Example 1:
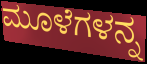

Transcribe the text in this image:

ಮೂಳೆಗಳನ್ನ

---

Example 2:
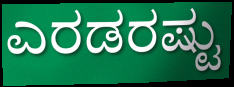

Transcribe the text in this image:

ಎರಡರಷ್ಟು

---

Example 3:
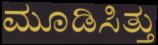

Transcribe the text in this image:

ಮೂಡಿಸಿತ್ತು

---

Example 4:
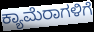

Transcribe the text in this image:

ಕ್ಯಾಮೆರಾಗಳಿಗೆ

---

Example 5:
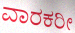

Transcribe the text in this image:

ವಾರಕರೀ